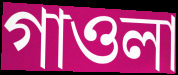
গাওলা